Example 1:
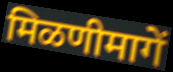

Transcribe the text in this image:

मिळणीमागें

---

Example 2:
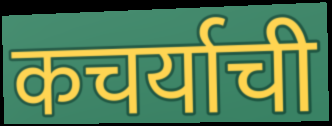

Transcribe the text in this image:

कचर्याची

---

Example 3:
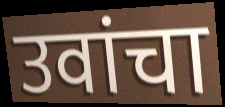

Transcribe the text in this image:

उवांचा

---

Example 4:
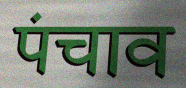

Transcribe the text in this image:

पंचाव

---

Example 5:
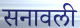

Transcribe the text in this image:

सनावली